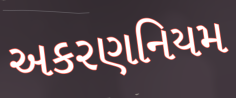
અકરણનિયમ